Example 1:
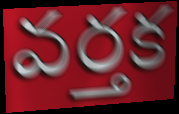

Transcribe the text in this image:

వర్తక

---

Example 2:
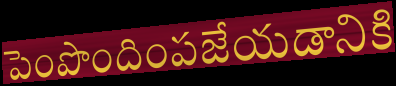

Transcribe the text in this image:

పెంపొందింపజేయడానికి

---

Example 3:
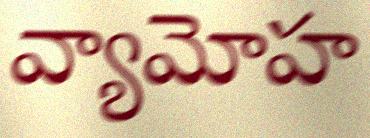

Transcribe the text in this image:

వ్యామోహ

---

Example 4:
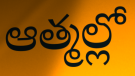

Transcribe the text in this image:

ఆత్మల్లో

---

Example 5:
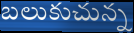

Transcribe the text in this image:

బలుకుచున్న